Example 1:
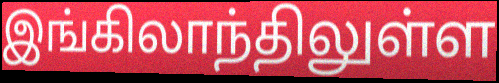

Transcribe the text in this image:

இங்கிலாந்திலுள்ள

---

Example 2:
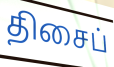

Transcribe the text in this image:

திசைப்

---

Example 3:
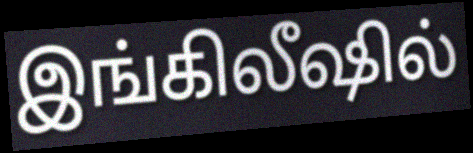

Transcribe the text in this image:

இங்கிலீஷில்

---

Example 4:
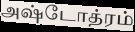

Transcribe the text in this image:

அஷ்டோத்ரம்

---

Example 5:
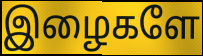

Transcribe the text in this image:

இழைகளே